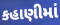
કહાણીમાં